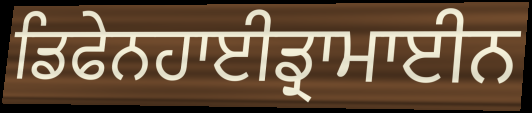
ਡਿਫੇਨਹਾਈਡ੍ਰਾਮਾਈਨ